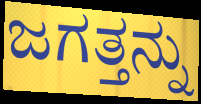
ಜಗತ್ತನ್ನು